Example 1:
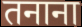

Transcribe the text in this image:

तनाना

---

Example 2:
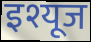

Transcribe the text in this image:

इश्यूज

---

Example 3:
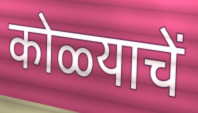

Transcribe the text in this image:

कोळ्याचें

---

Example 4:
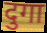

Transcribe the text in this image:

दुगा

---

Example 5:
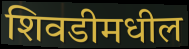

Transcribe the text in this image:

शिवडीमधील